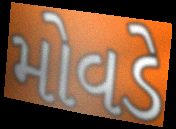
મોવડે